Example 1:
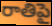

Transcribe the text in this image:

రాతిపై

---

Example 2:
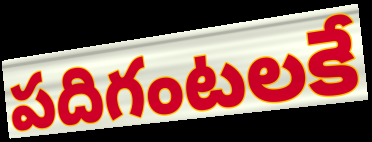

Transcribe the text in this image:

పదిగంటలకే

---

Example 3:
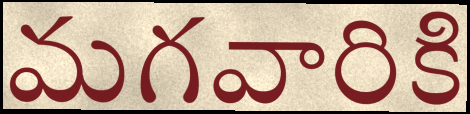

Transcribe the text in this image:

మగవారికి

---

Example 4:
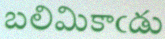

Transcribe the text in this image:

బలిమికాఁడు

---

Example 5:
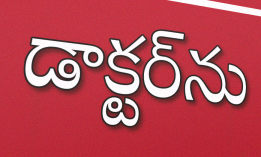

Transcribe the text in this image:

డాక్టర్‌ను